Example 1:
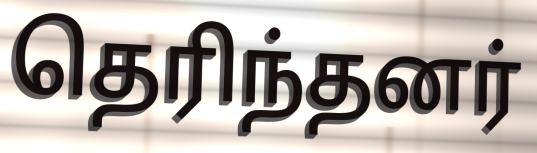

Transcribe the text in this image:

தெரிந்தனர்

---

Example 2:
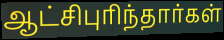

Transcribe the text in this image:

ஆட்சிபுரிந்தார்கள்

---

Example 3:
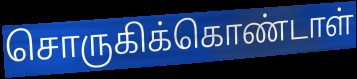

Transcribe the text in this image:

சொருகிக்கொண்டாள்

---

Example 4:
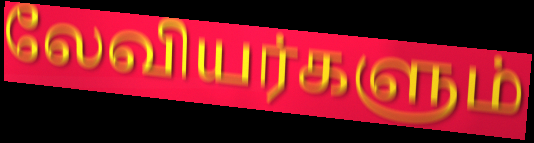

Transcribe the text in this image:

லேவியர்களும்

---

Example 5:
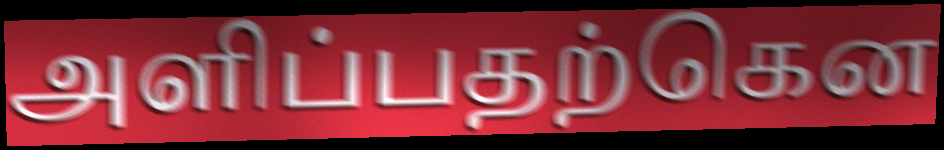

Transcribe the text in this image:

அளிப்பதற்கென